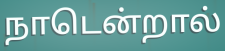
நாடென்றால்